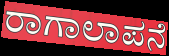
ರಾಗಾಲಾಪನೆ